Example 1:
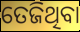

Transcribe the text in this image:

ତେଜିଥିବା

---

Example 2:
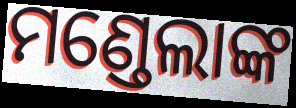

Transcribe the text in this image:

ମଣ୍ଡେଲାଙ୍କ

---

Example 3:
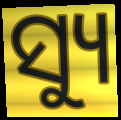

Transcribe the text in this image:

ସ୍ୟୁ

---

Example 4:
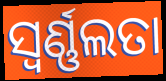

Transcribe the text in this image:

ସ୍ଵର୍ଣ୍ଣଲତା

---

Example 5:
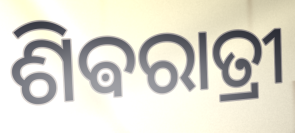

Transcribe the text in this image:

ଶିଵରାତ୍ରୀ